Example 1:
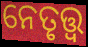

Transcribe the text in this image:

ନେତୃତ୍ତ୍ୱ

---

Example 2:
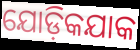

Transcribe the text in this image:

ଯୋଡ଼ିକଯାକ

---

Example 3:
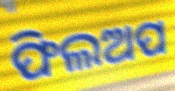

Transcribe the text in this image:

ଫିଲଅପ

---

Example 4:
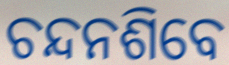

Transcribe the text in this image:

ଚନ୍ଦନଶିବେ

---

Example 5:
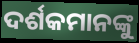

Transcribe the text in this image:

ଦର୍ଶକମାନଙ୍କୁ